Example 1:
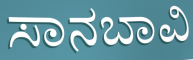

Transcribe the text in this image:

ಸಾನಬಾವಿ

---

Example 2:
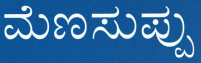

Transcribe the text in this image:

ಮೆಣಸುಪ್ಪು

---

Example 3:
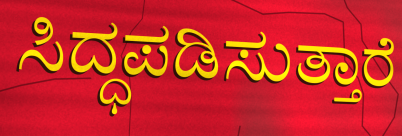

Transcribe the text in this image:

ಸಿದ್ಧಪಡಿಸುತ್ತಾರೆ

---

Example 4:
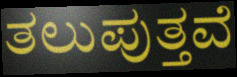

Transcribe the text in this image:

ತಲುಪುತ್ತವೆ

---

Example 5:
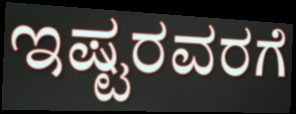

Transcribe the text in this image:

ಇಷ್ಟರವರಗೆ